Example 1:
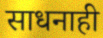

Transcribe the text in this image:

साधनाही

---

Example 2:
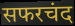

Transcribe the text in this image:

सफरचंद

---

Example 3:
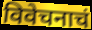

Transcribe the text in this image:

विवेचनाचं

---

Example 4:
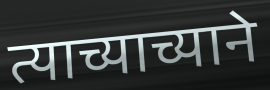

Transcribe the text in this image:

त्याच्याच्याने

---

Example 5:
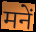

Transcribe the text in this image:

मनें